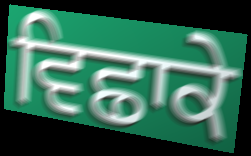
ਵਿਛਾਕੇ